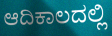
ಆದಿಕಾಲದಲ್ಲಿ